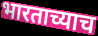
भारताच्याच